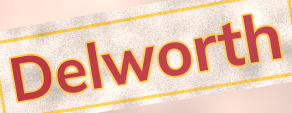
Delworth